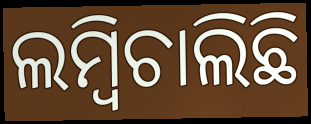
ଲମ୍ବିଚାଲିଛି